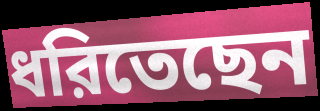
ধরিতেছেন